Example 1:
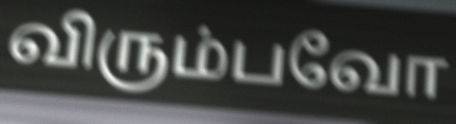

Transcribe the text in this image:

விரும்பவோ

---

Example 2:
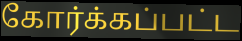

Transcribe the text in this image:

கோர்க்கப்பட்ட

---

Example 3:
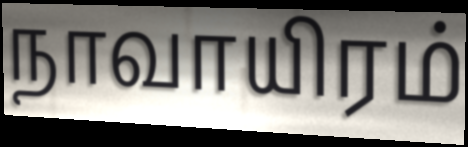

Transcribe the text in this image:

நாவாயிரம்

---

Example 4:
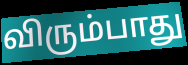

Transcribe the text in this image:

விரும்பாது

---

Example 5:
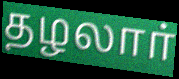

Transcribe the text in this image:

தழலார்